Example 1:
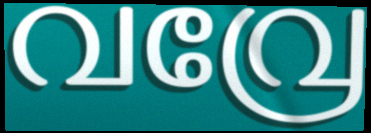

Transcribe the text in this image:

വവ്രേ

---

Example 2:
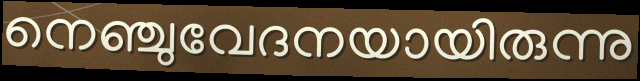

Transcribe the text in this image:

നെഞ്ചുവേദനയായിരുന്നു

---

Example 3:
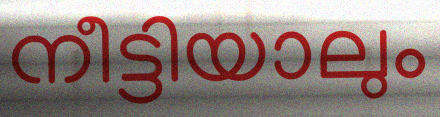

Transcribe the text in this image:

നീട്ടിയാലും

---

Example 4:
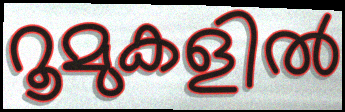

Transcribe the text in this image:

റൂമുകളിൽ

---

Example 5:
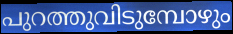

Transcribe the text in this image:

പുറത്തുവിടുമ്പോഴും